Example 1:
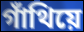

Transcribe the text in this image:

গাঁথিয়ে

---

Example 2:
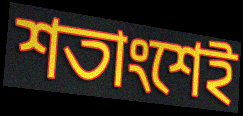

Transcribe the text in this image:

শতাংশেই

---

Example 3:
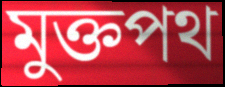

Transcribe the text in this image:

মুক্তপথ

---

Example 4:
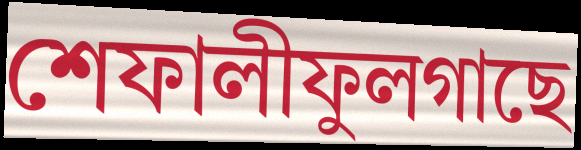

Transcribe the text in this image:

শেফালীফুলগাছে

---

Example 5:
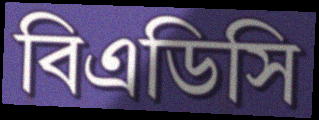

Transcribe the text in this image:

বিএডিসি